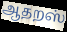
ஆதறஸ்